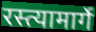
रस्त्यामार्गे